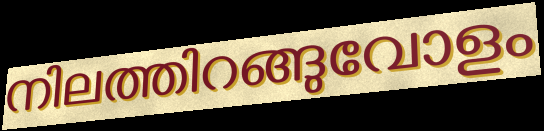
നിലത്തിറങ്ങുവോളം